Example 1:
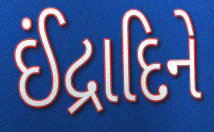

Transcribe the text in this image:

ઈંદ્રાદિને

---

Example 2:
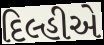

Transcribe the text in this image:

દિલ્હીએ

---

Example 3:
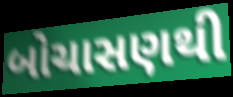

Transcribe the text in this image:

બોચાસણથી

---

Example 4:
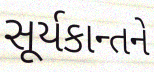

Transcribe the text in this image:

સૂર્યકાન્તને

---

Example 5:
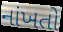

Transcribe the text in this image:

નાંખતો